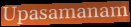
Upasamanam